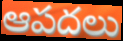
ఆపదలు